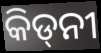
କିଡ୍‌ନୀ